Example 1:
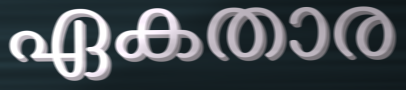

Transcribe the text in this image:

ഏകതാര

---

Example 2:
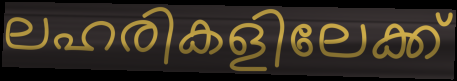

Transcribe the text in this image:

ലഹരികളിലേക്ക്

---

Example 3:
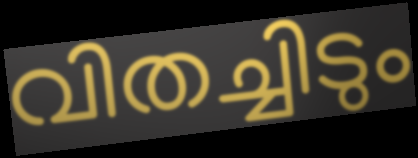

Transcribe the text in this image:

വിതച്ചിടും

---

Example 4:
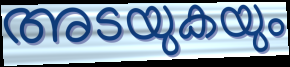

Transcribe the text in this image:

അടയുകയും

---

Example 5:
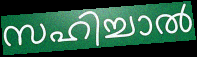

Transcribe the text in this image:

സഹിച്ചാൽ